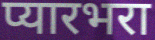
प्यारभरा